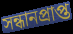
সন্ধানপ্রাপ্ত